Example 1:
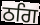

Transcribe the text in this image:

ਠਗਿ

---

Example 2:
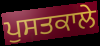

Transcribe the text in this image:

ਪੁਸਤਕਾਲੇ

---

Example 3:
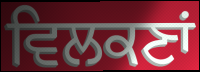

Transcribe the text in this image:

ਵਿਲਕਣਾਂ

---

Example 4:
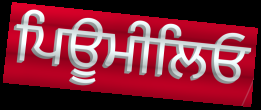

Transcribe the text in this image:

ਪਿਊਮੀਲਿਓ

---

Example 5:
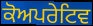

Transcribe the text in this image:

ਕੋਅਪਰੇਟਿਵ